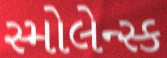
સ્મોલેન્સ્ક